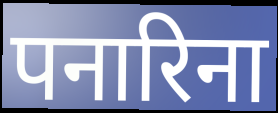
पनारिना